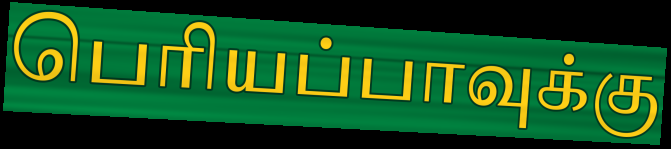
பெரியப்பாவுக்கு